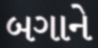
બગાને